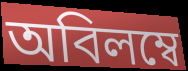
অবিলম্বে